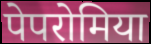
पेपरोमिया